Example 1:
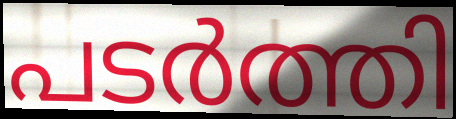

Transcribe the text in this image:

പടർത്തി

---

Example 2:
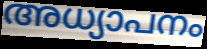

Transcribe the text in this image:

അധ്യാപനം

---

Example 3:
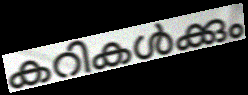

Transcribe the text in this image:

കറികൾക്കും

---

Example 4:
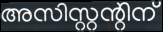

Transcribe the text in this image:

അസിസ്റ്റന്റിന്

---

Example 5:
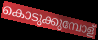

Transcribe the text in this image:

കൊടുക്കുമ്പോള്